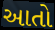
આતો